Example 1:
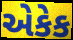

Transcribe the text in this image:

એકેક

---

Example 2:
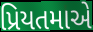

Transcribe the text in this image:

પ્રિયતમાએ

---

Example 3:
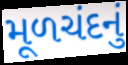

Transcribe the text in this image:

મૂળચંદનું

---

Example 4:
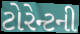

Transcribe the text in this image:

ટોરેન્ટની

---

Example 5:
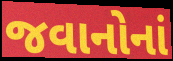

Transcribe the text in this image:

જવાનોનાં